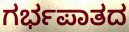
ಗರ್ಭಪಾತದ